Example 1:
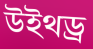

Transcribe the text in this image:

উইথড্র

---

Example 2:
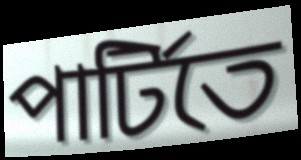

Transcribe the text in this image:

পার্টিতে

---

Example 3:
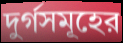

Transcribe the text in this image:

দুর্গসমূহের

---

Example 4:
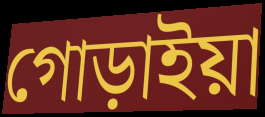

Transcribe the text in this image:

গোড়াইয়া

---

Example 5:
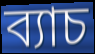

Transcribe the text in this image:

ব্যাচ